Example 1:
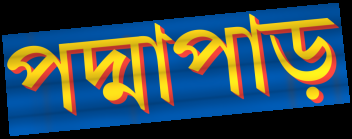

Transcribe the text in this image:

পদ্মাপাড়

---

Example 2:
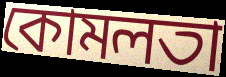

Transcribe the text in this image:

কোমলতা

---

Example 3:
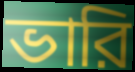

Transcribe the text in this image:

ভারি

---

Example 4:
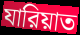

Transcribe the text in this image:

যারিয়াত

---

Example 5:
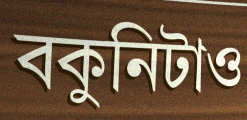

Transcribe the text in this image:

বকুনিটাও